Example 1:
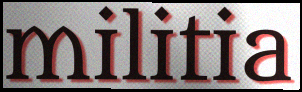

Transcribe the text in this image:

militia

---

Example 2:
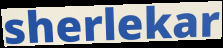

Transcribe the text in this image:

sherlekar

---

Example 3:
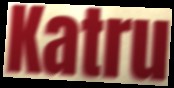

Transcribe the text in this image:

Katru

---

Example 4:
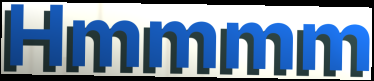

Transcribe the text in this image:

Hmmmm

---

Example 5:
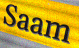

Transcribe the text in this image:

Saam